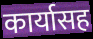
कार्यासह